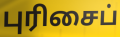
புரிசைப்